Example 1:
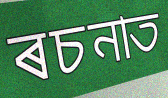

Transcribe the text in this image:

ৰচনাত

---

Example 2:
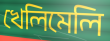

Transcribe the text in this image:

খেলিমেলি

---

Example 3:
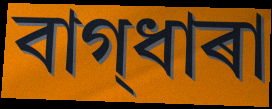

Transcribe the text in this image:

বাগ্‌ধাৰা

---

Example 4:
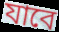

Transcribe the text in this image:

যাবে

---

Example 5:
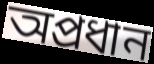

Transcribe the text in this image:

অপ্ৰধান